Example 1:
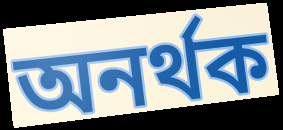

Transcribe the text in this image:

অনর্থক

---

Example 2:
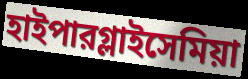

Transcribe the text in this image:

হাইপারগ্লাইসেমিয়া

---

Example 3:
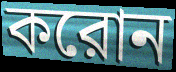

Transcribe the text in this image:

করোন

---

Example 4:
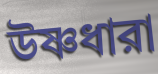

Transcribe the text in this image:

উষ্ণধারা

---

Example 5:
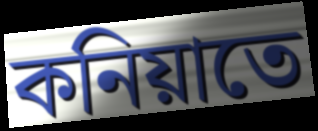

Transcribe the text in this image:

কনিয়াতে